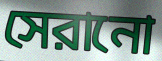
সেরানো